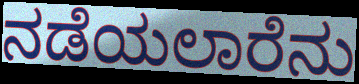
ನಡೆಯಲಾರೆನು